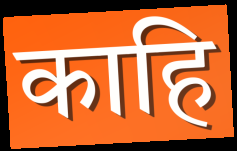
काहि